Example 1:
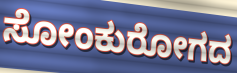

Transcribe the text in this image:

ಸೋಂಕುರೋಗದ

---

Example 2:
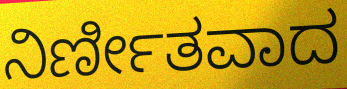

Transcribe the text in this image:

ನಿರ್ಣೀತವಾದ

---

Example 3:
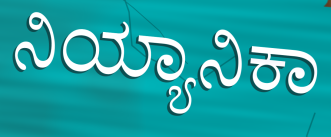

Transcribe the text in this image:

ನಿಯ್ಯಾನಿಕಾ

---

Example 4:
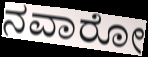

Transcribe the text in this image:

ನವಾರೋ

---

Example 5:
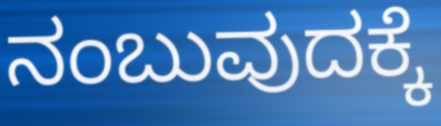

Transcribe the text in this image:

ನಂಬುವುದಕ್ಕೆ